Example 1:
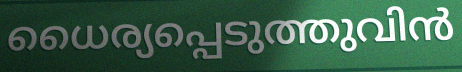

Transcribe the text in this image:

ധൈര്യപ്പെടുത്തുവിൻ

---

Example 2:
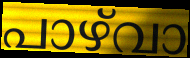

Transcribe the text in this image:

പാഴ്‌വാ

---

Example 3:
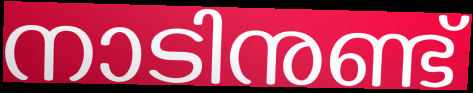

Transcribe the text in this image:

നാടിനുണ്ട്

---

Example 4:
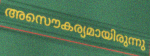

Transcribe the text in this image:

അസൌകര്യമായിരുന്നു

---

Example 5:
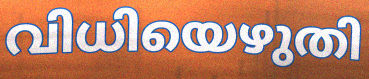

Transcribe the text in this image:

വിധിയെഴുതി